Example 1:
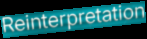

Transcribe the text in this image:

Reinterpretation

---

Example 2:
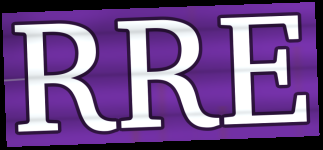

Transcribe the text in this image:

RRE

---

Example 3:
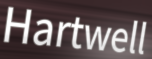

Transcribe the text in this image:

Hartwell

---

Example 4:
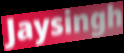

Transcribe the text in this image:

Jaysingh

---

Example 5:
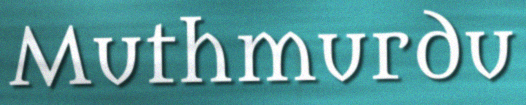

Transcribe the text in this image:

Muthmurdu